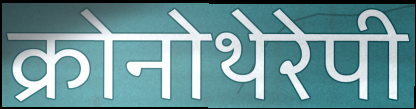
क्रोनोथेरेपी